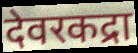
देवरकद्रा